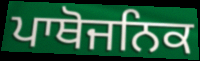
ਪਾਥੋਜਨਿਕ